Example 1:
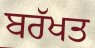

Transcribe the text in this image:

ਬਰੱਖਤ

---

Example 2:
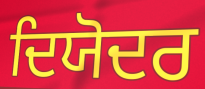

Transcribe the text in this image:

ਦਿਯੋਦਰ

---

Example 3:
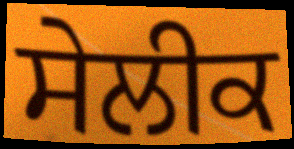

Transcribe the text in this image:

ਸੇਲੀਕ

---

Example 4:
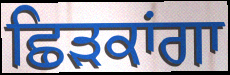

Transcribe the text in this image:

ਛਿੜਕਾਂਗਾ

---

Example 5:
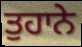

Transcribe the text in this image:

ਤੁਹਾਨੇ